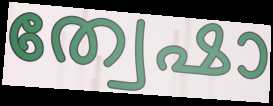
ത്വേഷാ